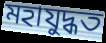
মহাযুদ্ধত